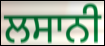
ਲਸਾਨੀ